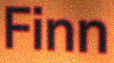
Finn